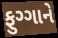
ફુગ્ગાને